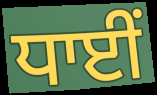
ਧਾਈਂ